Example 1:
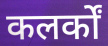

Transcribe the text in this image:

कलर्कों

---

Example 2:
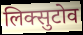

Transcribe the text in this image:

लिक्सुटोव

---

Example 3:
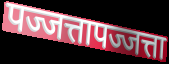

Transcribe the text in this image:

पज्जत्तापज्जत्ता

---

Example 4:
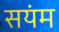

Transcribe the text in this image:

सयंम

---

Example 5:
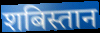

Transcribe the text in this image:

शबिस्तान